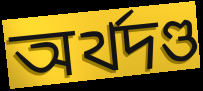
অর্থদণ্ড